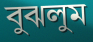
বুঝলুম